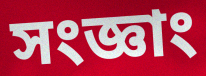
সংজ্ঞাং